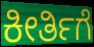
ಕೀರ್ತಿಗೆ